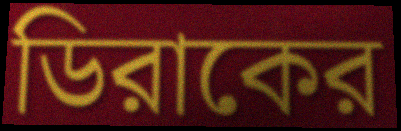
ডিরাকের